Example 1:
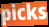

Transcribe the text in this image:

picks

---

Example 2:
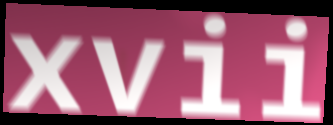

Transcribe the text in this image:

xvii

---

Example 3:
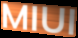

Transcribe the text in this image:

MIUI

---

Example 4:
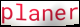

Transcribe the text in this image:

planer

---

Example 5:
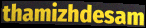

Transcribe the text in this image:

thamizhdesam